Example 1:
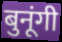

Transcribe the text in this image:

बुनूंगी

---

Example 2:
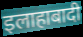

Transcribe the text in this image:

इलाहाबादी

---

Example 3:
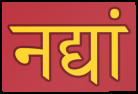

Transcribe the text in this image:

नद्यां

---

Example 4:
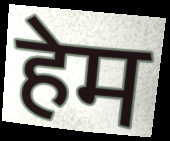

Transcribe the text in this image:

हेम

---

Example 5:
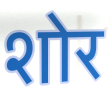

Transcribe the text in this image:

शोर